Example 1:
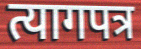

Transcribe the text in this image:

त्यागपत्र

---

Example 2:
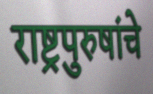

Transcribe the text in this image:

राष्ट्रपुरुषांचे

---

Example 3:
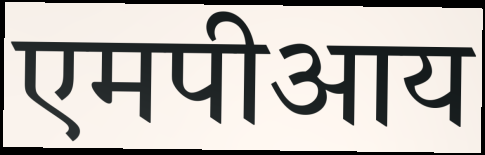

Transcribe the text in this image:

एमपीआय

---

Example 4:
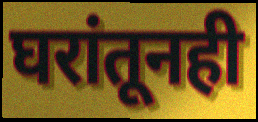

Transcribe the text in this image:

घरांतूनही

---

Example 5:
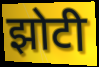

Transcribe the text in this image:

झोटी